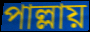
পাল্লায়